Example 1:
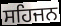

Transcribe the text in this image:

ਸਹਿਜਨ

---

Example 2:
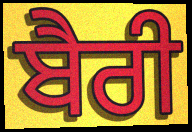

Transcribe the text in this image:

ਬੈਰੀ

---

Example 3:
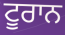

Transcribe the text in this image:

ਟੂਰਾਨ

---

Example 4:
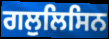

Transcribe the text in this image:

ਗਲੁਲਿਸਿਨ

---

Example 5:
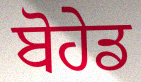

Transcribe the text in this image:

ਬੋਹੇਡ